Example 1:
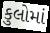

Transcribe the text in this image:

કુલોમાં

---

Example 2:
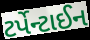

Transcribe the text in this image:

ટર્પેન્ટાઈન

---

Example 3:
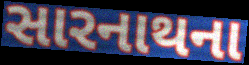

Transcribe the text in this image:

સારનાથના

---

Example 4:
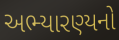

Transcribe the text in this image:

અભ્યારણ્યનો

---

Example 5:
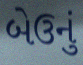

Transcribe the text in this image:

બેઉનું